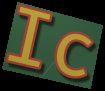
Ic